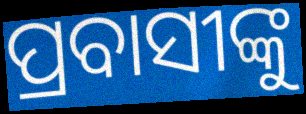
ପ୍ରବାସୀଙ୍କୁ